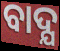
ବାଦ୍ଯ